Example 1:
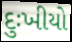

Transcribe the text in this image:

દુઃખીયો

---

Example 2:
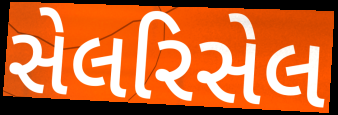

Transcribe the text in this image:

સેલરિસેલ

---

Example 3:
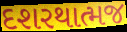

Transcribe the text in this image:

દશરથાત્મજ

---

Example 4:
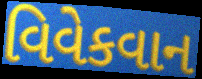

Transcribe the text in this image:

વિવેકવાન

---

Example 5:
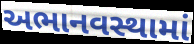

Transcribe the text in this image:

અભાનવસ્થામાં